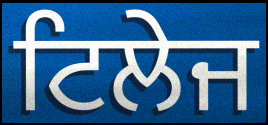
ਟਿਲੇਜ